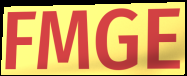
FMGE